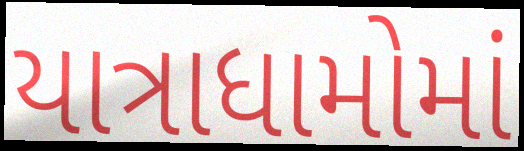
યાત્રાધામોમાં